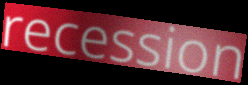
recession